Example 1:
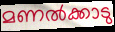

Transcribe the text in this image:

മണൽക്കാടു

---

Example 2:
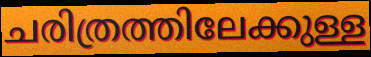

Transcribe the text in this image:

ചരിത്രത്തിലേക്കുള്ള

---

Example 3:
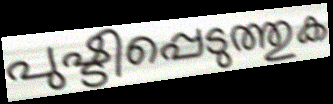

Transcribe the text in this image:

പുഷ്ടിപ്പെടുത്തുക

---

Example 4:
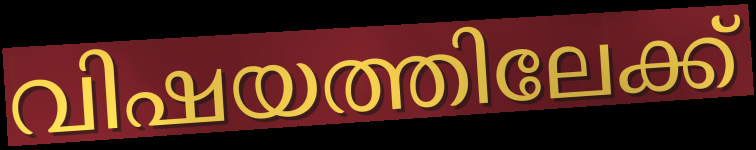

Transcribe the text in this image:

വിഷയത്തിലേക്ക്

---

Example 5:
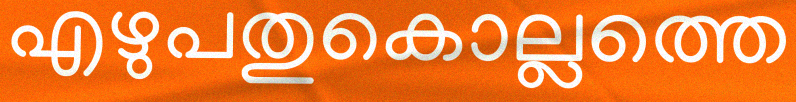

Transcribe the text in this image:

എഴുപതുകൊല്ലത്തെ